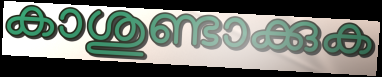
കാശുണ്ടാക്കുക